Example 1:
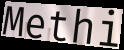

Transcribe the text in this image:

Methi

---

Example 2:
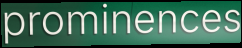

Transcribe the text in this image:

prominences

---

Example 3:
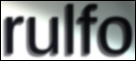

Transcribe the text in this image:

rulfo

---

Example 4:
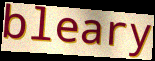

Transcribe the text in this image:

bleary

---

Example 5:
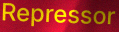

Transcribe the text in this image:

Repressor